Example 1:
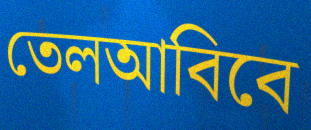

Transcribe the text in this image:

তেলআবিবে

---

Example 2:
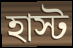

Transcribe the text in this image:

হাস্ট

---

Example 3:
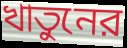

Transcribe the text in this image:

খাতুনের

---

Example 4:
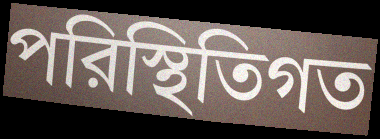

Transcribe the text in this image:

পরিস্থিতিগত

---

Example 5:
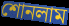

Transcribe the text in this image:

শোনলাম